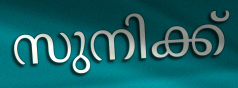
സുനിക്ക്